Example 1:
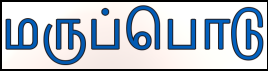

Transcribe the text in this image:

மருப்பொடு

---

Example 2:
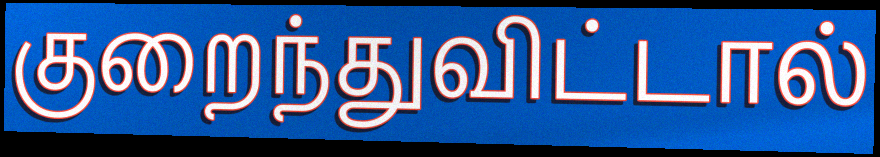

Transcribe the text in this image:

குறைந்துவிட்டால்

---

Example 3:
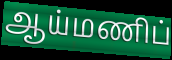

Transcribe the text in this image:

ஆய்மணிப்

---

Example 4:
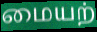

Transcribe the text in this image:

மையற்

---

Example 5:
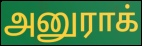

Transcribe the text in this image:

அனுராக்